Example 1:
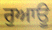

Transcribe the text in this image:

ਰੁਆਊ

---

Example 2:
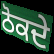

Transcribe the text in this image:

ਠੋਕਦੇ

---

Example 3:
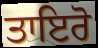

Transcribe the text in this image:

ਤਾਇਰੋ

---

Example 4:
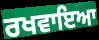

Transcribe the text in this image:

ਰਖਵਾਇਆ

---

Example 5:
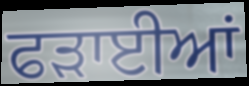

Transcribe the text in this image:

ਫੜਾਈਆਂ